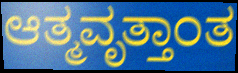
ಆತ್ಮವೃತ್ತಾಂತ